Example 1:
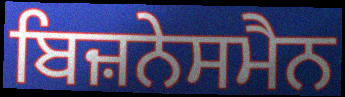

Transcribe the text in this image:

ਬਿਜ਼ਨੇਸਮੈਨ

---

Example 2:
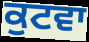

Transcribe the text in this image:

ਕੁਟਵਾ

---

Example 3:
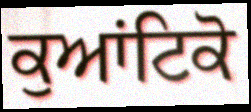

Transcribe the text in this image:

ਕੁਆਂਟਿਕੋ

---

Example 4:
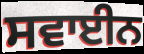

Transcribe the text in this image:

ਸਵਾਈਨ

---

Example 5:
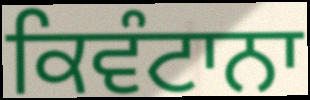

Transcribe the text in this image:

ਕਿਵੰਟਾਨਾ